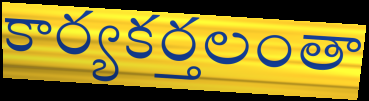
కార్యకర్తలంతా